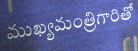
ముఖ్యమంత్రిగారితో